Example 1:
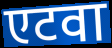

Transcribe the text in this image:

एटवा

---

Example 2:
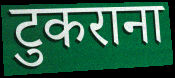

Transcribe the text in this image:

टुकराना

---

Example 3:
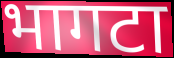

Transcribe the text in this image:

भागटा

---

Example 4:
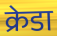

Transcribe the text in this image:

क्रेडा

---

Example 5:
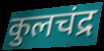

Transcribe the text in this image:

कुलचंद्र